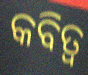
କବିତ୍ବ